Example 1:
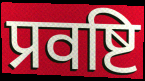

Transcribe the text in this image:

प्रवष्टि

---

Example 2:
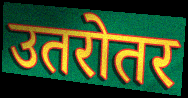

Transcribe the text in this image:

उतरोतर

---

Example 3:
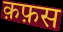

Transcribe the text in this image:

क़फ़स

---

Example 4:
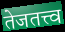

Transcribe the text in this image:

तेजतत्त्व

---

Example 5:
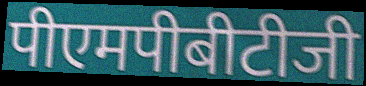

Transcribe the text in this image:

पीएमपीबीटीजी